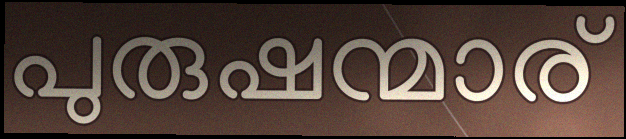
പുരുഷന്മാര്